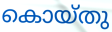
കൊയ്തു